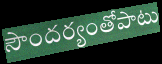
సౌందర్యంతోపాటు